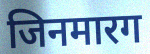
जिनमारग